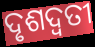
ଦୃଶଦ୍ୱତୀ